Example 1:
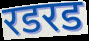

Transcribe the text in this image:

रडरड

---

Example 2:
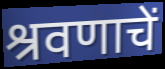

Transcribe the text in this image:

श्रवणाचें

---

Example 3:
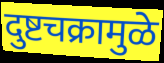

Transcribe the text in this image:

दुष्टचक्रामुळे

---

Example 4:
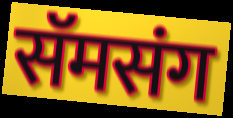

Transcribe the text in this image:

सॅमसंग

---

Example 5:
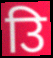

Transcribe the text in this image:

उि